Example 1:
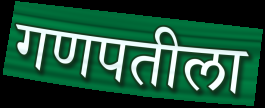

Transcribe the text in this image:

गणपतीला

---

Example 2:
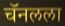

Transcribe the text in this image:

चॅनलला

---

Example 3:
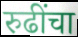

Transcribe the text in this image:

रुढींचा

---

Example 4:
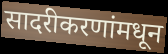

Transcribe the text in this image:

सादरीकरणांमधून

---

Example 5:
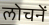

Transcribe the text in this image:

लोचनें